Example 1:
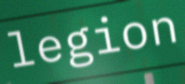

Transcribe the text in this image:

legion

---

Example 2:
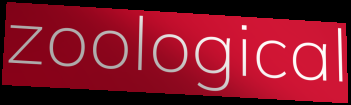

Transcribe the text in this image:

zoological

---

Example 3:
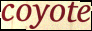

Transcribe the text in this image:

coyote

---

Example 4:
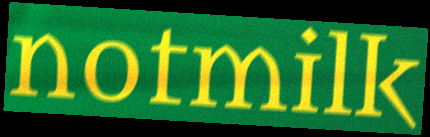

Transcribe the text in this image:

notmilk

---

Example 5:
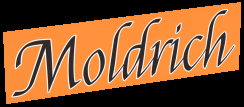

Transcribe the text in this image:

Moldrich